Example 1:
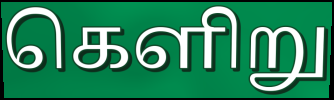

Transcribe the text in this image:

கெளிறு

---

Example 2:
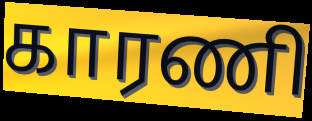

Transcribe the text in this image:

காரணி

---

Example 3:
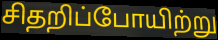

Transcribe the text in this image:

சிதறிப்போயிற்று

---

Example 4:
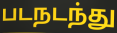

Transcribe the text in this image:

படநடந்து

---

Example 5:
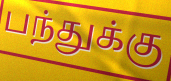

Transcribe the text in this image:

பந்துக்கு